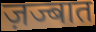
ज़ज्बात